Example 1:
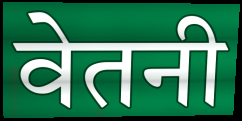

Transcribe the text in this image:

वेतनी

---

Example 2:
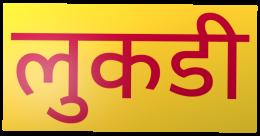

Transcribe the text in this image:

लुकडी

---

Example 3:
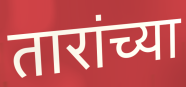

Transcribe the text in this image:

तारांच्या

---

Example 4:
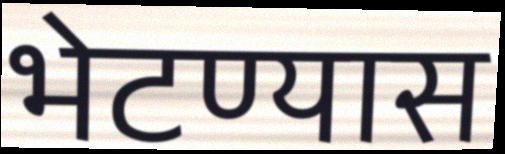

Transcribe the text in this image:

भेटण्यास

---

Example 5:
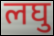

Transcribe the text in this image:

लघु